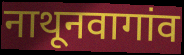
नाथूनवागांव